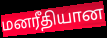
மனரீதியான